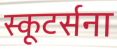
स्कूटर्सना